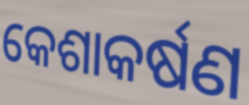
କେଶାକର୍ଷଣ